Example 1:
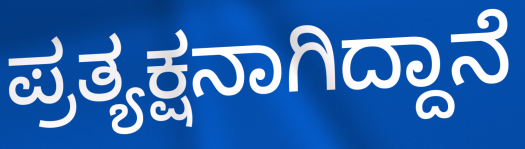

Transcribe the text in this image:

ಪ್ರತ್ಯಕ್ಷನಾಗಿದ್ದಾನೆ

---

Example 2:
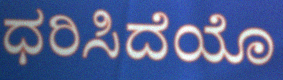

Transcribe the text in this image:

ಧರಿಸಿದೆಯೊ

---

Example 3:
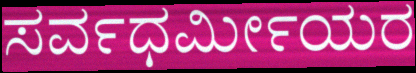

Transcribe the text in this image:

ಸರ್ವಧರ್ಮೀಯರ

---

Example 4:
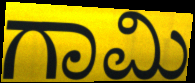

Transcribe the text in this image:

ಗಾಮಿ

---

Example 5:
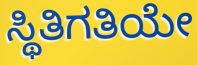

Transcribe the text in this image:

ಸ್ಥಿತಿಗತಿಯೇ